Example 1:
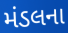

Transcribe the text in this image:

મંડલના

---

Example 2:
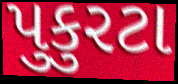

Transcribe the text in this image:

પુકુરટા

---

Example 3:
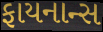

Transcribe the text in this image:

ફાયનાન્સ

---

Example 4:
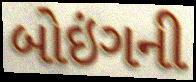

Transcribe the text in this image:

બોઇંગની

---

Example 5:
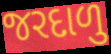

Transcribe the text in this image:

જરદાળુ